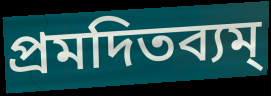
প্রমদিতব্যম্